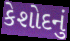
કેશોદનું